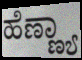
ಹೆಣ್ಣ್ಯಾ